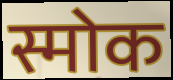
स्मोक